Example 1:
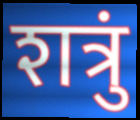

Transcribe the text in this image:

शत्रुं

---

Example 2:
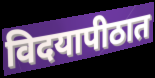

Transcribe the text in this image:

विदयापीठात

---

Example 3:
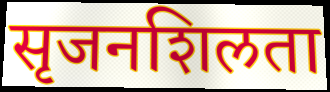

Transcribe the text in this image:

सृजनशिलता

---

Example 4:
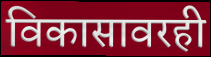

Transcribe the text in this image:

विकासावरही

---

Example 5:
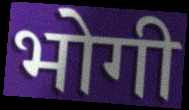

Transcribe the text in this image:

भोगी